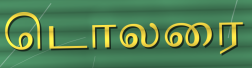
டொலரை